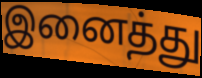
இனைத்து